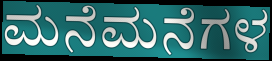
ಮನೆಮನೆಗಳ